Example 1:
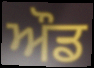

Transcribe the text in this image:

ਔਡ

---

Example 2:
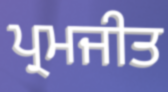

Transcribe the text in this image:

ਪ੍ਰਮਜੀਤ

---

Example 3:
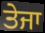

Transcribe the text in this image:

ਤੇਜਾ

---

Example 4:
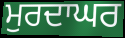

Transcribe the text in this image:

ਮੁਰਦਾਘਰ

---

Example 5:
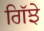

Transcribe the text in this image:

ਗਿੱਝੇ